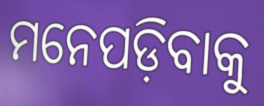
ମନେପଡ଼ିବାକୁ